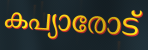
കപ്യാരോട്